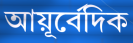
আয়ূর্বেদিক